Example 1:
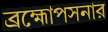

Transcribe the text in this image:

ব্রহ্মোপসনার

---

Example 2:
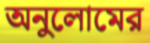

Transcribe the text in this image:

অনুলোমের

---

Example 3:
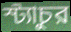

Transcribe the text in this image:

স্ট্যাচুর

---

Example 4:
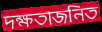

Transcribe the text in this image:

দক্ষতাজনিত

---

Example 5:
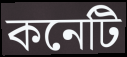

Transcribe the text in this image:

কনেটি